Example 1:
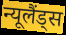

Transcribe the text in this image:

न्यूलैंड्स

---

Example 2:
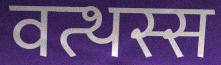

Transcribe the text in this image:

वत्थस्स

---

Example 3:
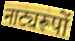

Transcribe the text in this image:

नाट्यरूपों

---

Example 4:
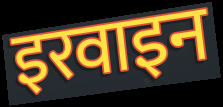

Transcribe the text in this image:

इरवाइन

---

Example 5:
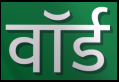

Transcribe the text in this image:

वॉर्ड